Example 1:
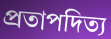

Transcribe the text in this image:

প্ৰতাপদিত্য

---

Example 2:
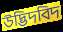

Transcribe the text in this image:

উদ্ভিদবিদ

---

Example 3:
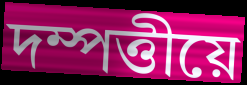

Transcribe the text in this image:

দম্পত্তীয়ে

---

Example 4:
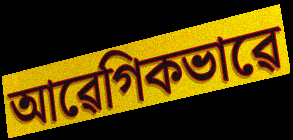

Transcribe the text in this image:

আৱেগিকভাৱে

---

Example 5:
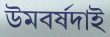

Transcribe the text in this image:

উমবৰ্ষদাই